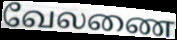
வேலணை